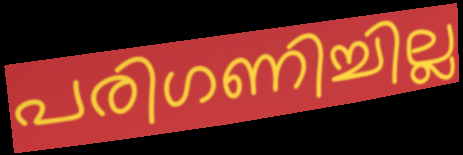
പരിഗണിച്ചില്ല